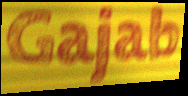
Gajab